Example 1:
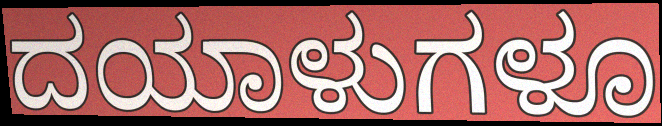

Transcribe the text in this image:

ದಯಾಳುಗಳೂ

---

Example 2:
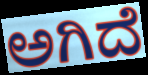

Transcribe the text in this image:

ಅಗಿದೆ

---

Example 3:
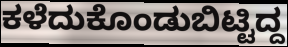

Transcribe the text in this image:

ಕಳೆದುಕೊಂಡುಬಿಟ್ಟಿದ್ದ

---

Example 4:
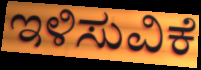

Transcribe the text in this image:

ಇಳಿಸುವಿಕೆ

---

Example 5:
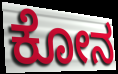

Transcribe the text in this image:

ಕೋನ